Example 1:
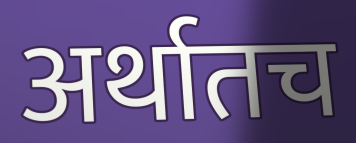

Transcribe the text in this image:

अर्थातच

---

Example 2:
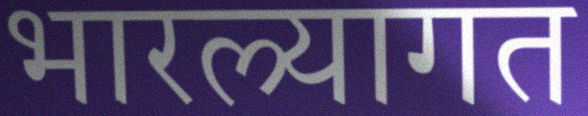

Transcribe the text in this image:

भारल्यागत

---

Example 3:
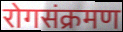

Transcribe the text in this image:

रोगसंक्रमण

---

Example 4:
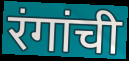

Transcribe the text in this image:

रंगांची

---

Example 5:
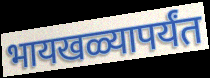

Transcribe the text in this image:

भायखळ्यापर्यंत